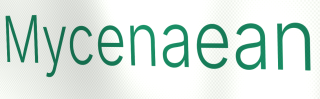
Mycenaean